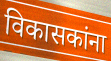
विकासकांना